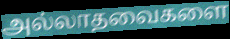
அல்லாதவைகளை